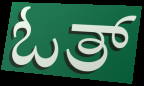
ಓತ್